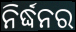
ନିର୍ଦ୍ଧନର